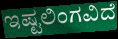
ಇಷ್ಟಲಿಂಗವಿದೆ